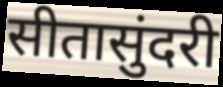
सीतासुंदरी